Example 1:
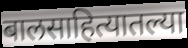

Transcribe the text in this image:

बालसाहित्यातल्या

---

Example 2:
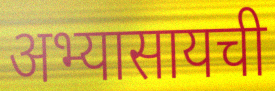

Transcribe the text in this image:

अभ्यासायची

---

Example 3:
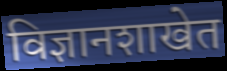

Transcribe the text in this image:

विज्ञानशाखेत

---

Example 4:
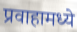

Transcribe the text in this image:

प्रवाहामध्ये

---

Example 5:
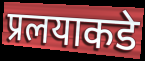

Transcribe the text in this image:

प्रलयाकडे